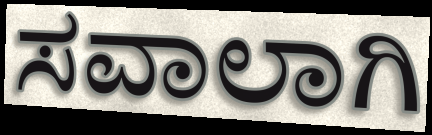
ಸವಾಲಾಗಿ